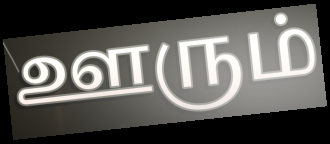
ஊரும்